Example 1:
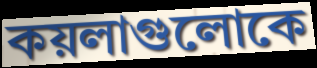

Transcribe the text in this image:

কয়লাগুলোকে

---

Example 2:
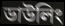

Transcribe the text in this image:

ডাউলিং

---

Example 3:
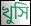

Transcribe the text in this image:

খুসি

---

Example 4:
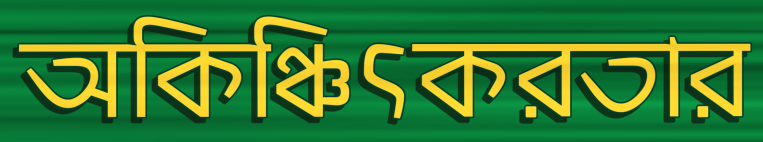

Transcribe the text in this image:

অকিঞ্চিৎকরতার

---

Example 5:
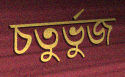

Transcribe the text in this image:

চতুর্ভুজ